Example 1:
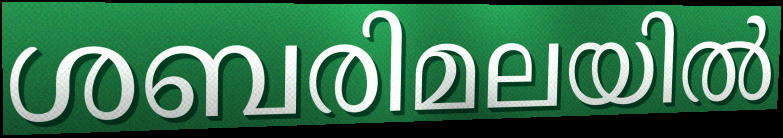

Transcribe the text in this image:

ശബരിമലയിൽ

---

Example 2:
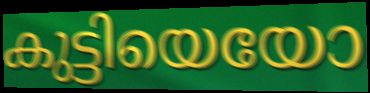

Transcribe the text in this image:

കുട്ടിയെയോ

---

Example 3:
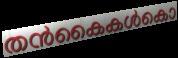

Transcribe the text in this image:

തൻകൈകൾകൊ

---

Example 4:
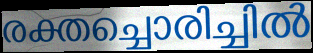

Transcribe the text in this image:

രക്തച്ചൊരിച്ചിൽ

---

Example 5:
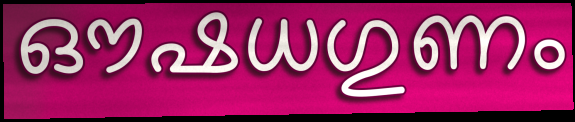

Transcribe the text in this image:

ഔഷധഗുണം